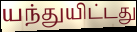
யந்துயிட்டது